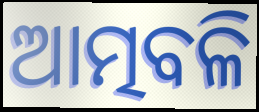
ଆତ୍ମବଳି